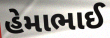
હેમાભાઈ